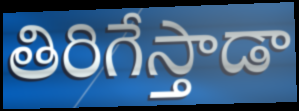
తిరిగేస్తాడా